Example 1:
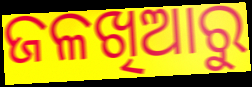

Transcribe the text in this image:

ଜଳଖିଆରୁ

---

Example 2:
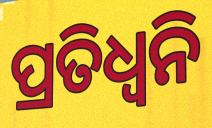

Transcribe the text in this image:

ପ୍ରତିଧ୍ବନି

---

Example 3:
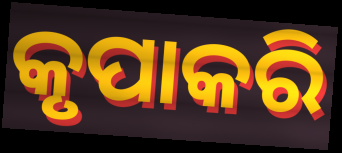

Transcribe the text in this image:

କୃପାକରି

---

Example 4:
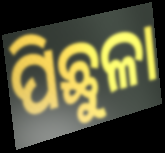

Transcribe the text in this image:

ପିଛୁଳା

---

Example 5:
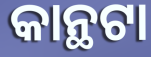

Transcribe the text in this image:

କାନ୍ଥଟା